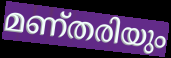
മണ്തരിയും